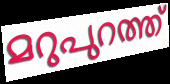
മറുപുറത്ത്